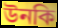
উনকি